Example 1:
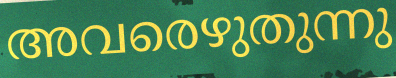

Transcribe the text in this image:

അവരെഴുതുന്നു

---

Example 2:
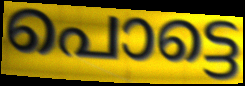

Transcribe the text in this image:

പൊട്ടെ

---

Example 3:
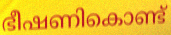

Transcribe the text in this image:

ഭീഷണികൊണ്ട്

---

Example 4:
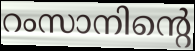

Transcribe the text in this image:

റംസാനിന്റെ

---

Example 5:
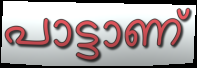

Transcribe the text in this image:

പാട്ടാണ്